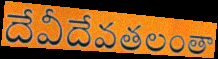
దేవీదేవతలంతా